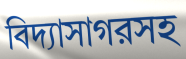
বিদ্যাসাগরসহ